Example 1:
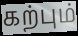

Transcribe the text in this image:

கற்பும்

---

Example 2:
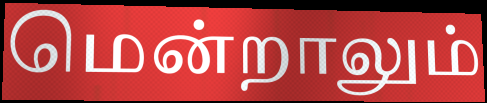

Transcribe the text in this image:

மென்றாலும்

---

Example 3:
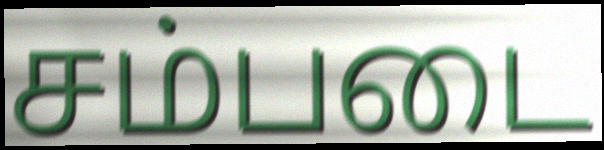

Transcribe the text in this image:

சம்படை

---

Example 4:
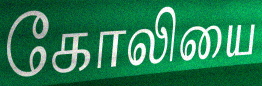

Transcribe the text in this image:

கோலியை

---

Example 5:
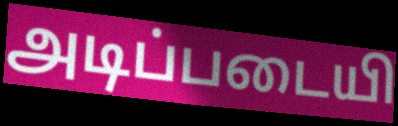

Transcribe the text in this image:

அடிப்படையி